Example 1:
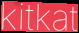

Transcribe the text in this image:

kitkat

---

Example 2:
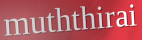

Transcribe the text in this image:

muththirai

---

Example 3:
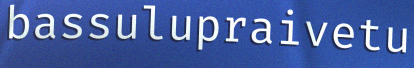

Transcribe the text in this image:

bassulupraivetu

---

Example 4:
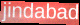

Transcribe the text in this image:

jindabad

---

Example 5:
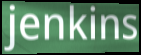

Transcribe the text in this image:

jenkins